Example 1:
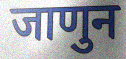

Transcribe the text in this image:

जाणुन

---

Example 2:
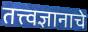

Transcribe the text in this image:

तत्त्वज्ञानाचे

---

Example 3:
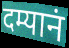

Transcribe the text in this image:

दम्यानं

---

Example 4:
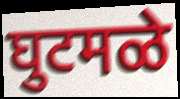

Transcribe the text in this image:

घुटमळे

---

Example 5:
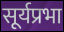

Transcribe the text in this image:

सूर्यप्रभा